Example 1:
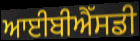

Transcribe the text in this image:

ਆਈਬੀਐੱਸਡੀ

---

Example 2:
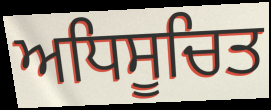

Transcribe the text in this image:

ਅਧਿਸੂਚਿਤ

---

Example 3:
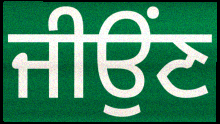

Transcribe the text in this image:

ਜੀਉਂਣ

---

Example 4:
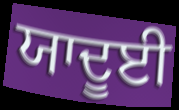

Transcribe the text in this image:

ਯਾਦੂਈ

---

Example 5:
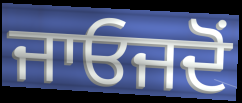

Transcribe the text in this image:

ਜਾਓਜਦੋਂ